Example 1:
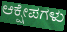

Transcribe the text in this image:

ಆಕ್ಷೇಪಗಳು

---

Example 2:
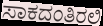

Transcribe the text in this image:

ಸಾಕದಂತಿರಲಿ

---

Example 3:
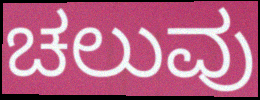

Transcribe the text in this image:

ಚಲುವು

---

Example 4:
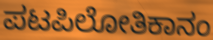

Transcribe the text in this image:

ಪಟಪಿಲೋತಿಕಾನಂ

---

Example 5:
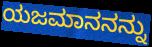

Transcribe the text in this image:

ಯಜಮಾನನನ್ನು